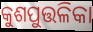
କୁଶପୁତ୍ତଳିକା